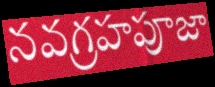
నవగ్రహపూజా